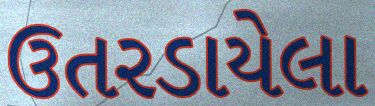
ઉતરડાયેલા